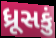
ધ્રૂસકું